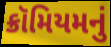
ક્રૉમિયમનું